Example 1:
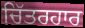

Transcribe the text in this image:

ਚਿੱਤਰਹਾਰ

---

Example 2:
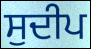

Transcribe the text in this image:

ਸੁਦੀਪ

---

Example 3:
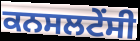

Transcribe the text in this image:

ਕਨਸਲਟੇਂਸੀ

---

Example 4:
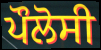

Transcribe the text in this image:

ਪੌਲੋਸੀ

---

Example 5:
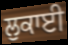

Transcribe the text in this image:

ਲੁਕਾਈ